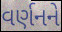
વર્ણનને